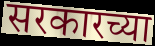
सरकारच्या